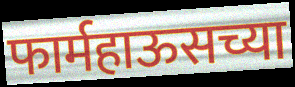
फार्महाऊसच्या